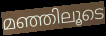
മഞ്ഞിലൂടെ